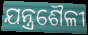
ଯନ୍ତ୍ରଶୈଳୀ